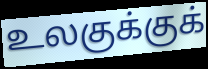
உலகுக்குக்